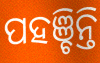
ପହଞ୍ଚିନ୍ତି